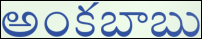
అంకబాబు